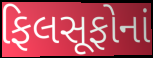
ફિલસૂફોનાં